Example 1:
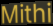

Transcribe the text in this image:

Mithi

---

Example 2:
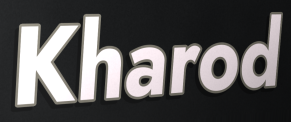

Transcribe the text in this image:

Kharod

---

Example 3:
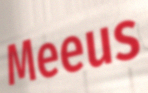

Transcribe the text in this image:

Meeus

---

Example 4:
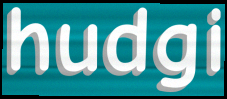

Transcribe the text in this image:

hudgi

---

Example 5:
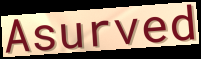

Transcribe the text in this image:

Asurved